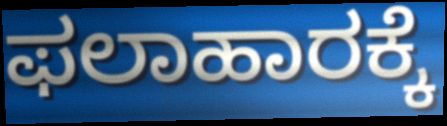
ಫಲಾಹಾರಕ್ಕೆ